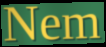
Nem